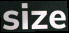
size